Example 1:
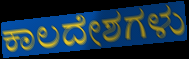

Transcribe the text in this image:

ಕಾಲದೇಶಗಳು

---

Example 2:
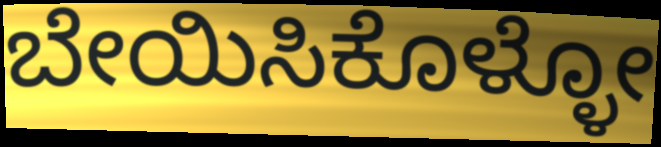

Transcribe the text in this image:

ಬೇಯಿಸಿಕೊಳ್ಳೋ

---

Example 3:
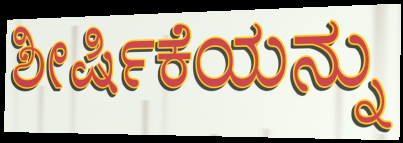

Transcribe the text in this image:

ಶೀರ್ಷಿಕೆಯನ್ನು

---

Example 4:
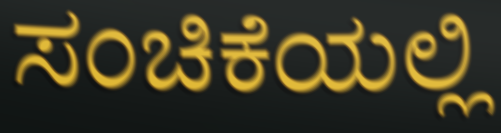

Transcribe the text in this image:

ಸಂಚಿಕೆಯಲ್ಲಿ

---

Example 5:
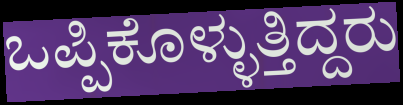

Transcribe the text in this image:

ಒಪ್ಪಿಕೊಳ್ಳುತ್ತಿದ್ದರು